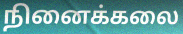
நினைக்கலை